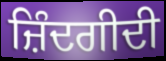
ਜ਼ਿੰਦਗੀਦੀ